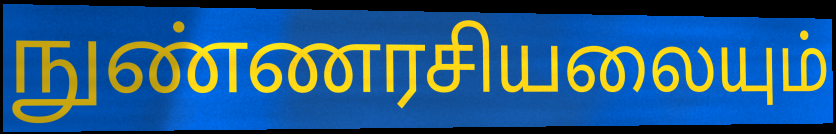
நுண்ணரசியலையும்